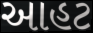
આહટ